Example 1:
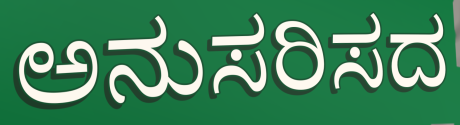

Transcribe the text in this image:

ಅನುಸರಿಸದ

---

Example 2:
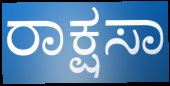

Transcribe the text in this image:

ರಾಕ್ಷಸಾ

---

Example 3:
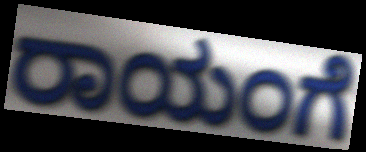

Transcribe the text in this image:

ರಾಯಂಗೆ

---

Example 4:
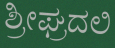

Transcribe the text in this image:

ಶ್ರೀಘ್ರದಲಿ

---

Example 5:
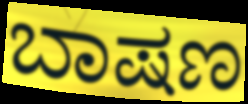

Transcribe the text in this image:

ಬಾಷಣ